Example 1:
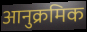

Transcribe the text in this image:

आनुक्रमिक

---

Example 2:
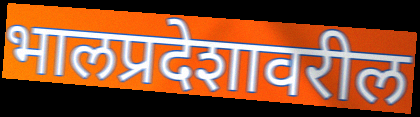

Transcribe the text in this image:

भालप्रदेशावरील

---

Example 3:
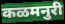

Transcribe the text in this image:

कळमनुरी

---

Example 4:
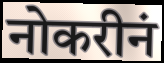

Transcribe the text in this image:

नोकरीनं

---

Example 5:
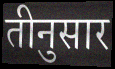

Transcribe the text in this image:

तीनुसार